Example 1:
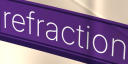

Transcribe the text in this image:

refraction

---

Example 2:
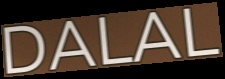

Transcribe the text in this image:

DALAL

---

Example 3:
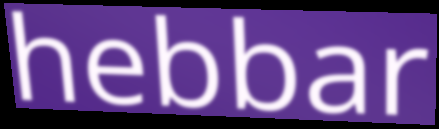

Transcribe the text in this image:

hebbar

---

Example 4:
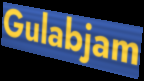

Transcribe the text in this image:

Gulabjam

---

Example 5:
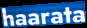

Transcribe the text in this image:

haarata